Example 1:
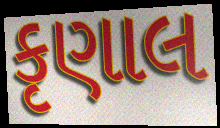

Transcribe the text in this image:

કૃણાલ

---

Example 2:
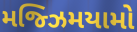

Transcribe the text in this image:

મજ્ઝિમયામો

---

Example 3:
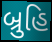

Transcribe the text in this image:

બ્રુહિ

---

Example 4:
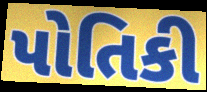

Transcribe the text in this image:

પોતિકી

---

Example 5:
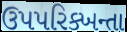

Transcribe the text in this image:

ઉપપરિક્ખન્તા